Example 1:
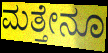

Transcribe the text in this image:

ಮತ್ತೇನೂ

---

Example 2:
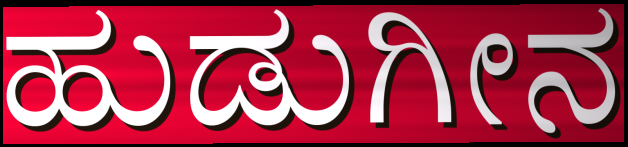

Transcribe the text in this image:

ಹುಡುಗೀನ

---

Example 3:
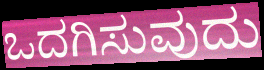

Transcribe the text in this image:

ಒದಗಿಸುವುದು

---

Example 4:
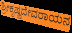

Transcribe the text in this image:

ಶ್ರೀಕೃಷ್ಣದೇವರಾಯನ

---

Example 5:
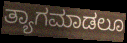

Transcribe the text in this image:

ತ್ಯಾಗಮಾಡಲೂ